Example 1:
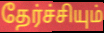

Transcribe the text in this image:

தேர்ச்சியும்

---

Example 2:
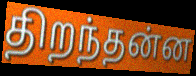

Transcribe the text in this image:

திறந்தன்ன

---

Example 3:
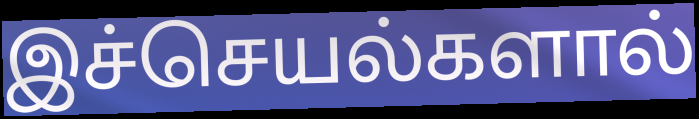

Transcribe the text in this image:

இச்செயல்களால்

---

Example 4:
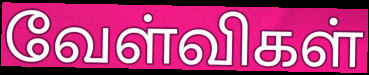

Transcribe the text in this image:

வேள்விகள்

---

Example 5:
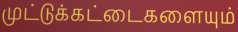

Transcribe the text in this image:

முட்டுக்கட்டைகளையும்